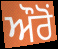
ਔਰੋਂ